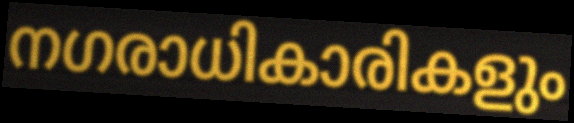
നഗരാധികാരികളും